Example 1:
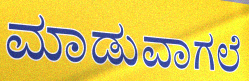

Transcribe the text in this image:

ಮಾಡುವಾಗಲೆ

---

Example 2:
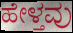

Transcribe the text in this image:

ಹೇಳ್ತವು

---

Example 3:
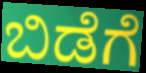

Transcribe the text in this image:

ಬಿಡೆಗೆ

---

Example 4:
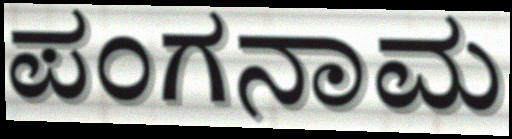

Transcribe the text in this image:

ಪಂಗನಾಮ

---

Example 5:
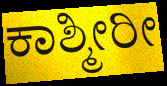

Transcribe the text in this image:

ಕಾಶ್ಮೀರೀ